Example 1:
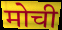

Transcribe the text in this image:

मोची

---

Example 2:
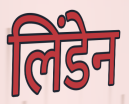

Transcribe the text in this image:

लिंडेन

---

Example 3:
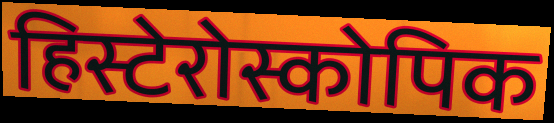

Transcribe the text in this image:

हिस्टेरोस्कोपिक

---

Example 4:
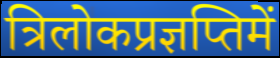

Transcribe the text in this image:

त्रिलोकप्रज्ञप्तिमें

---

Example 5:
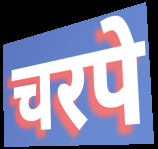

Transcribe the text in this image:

चरपे